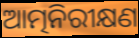
ଆତ୍ମନିରୀକ୍ଷଣ